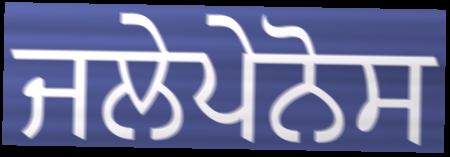
ਜਲੇਪੇਨੋਸ